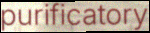
purificatory